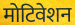
मोटिवेशन